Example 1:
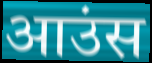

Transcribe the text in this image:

आउंस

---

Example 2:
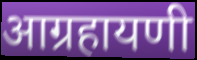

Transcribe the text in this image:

आग्रहायणी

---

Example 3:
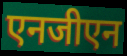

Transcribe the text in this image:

एनजीएन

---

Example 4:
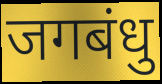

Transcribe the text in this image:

जगबंधु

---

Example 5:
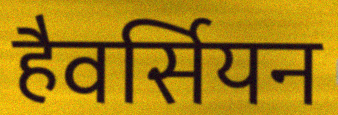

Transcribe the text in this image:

हैवर्सियन